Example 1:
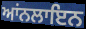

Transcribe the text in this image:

ਆਂਨਲਾਇਨ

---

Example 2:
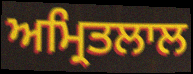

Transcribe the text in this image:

ਅਮ੍ਰਿਤਲਾਲ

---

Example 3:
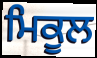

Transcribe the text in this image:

ਮਿਕੂਲ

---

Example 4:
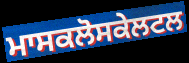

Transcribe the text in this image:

ਮਾਸਕਲੋਸਕੇਲਟਲ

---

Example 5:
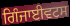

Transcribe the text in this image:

ਗਿੰਜਾਈਵਟਸ